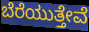
ಬೆರೆಯುತ್ತೇವೆ